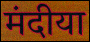
मंदीया